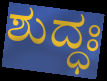
ಶುದ್ಧಃ